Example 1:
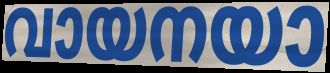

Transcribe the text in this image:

വായനയാ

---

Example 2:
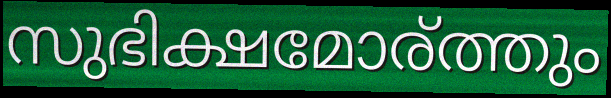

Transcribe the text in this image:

സുഭിക്ഷമോര്ത്തും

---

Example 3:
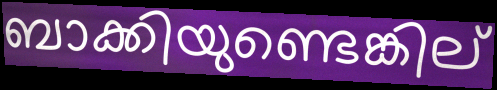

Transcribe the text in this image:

ബാക്കിയുണ്ടെങ്കില്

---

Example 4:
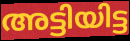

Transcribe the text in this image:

അട്ടിയിട്ട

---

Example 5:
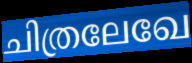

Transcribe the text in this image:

ചിത്രലേഖേ